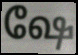
ஷே